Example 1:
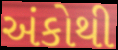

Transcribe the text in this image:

અંકોથી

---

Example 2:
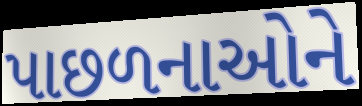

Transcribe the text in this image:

પાછળનાઓને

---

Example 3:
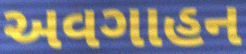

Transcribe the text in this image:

અવગાહન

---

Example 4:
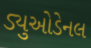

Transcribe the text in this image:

ડ્યુઓડેનલ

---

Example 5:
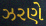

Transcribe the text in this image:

ઝરણે